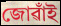
জোৱাঁই